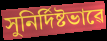
সুনিৰ্দিষ্টভাৱে